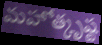
మహోత్కృష్ట